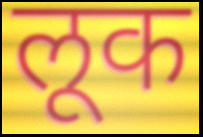
लूक